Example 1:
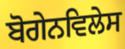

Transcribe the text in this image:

ਬੋਗੇਨਵਿਲੇਸ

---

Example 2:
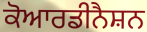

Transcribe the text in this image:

ਕੋਆਰਡੀਨੈਸ਼ਨ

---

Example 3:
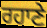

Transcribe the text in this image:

ਰਹਾਣੇ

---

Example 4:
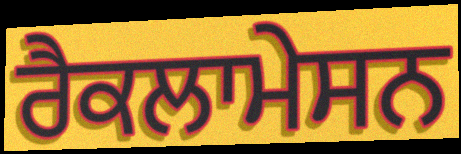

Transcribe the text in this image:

ਰੈਕਲਾਮੇਸਨ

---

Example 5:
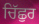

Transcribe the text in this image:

ਚਿੱਛੁਰ